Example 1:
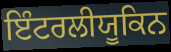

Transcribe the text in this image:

ਇੰਟਰਲੀਯੂਕਿਨ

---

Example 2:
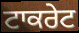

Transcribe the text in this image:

ਟਾਕਰੇਟ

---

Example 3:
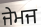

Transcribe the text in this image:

ਜੇਮਜ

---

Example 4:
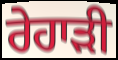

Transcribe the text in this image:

ਰੇਹਾੜੀ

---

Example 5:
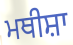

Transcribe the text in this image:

ਮਥੀਸ਼ਾ